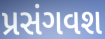
પ્રસંગવશ